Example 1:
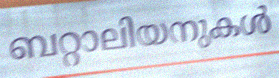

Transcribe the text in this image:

ബറ്റാലിയനുകൾ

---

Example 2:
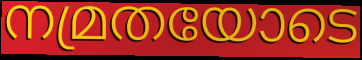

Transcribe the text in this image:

നമ്രതയോടെ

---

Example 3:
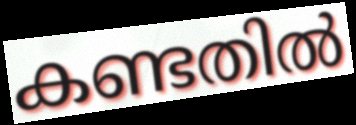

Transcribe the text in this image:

കണ്ടതിൽ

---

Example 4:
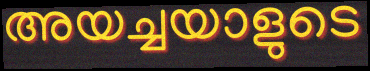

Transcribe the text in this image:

അയച്ചയാളുടെ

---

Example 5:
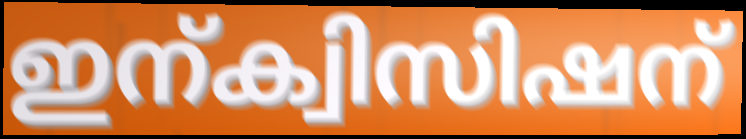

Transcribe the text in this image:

ഇന്ക്വിസിഷന്